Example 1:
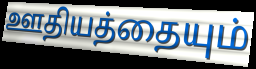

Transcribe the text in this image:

ஊதியத்தையும்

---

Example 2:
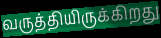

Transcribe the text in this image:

வருத்தியிருக்கிறது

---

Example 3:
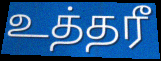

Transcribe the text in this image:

உத்தரீ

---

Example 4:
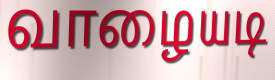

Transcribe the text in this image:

வாழையடி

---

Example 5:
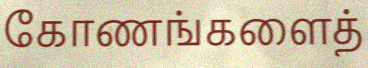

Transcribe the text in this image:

கோணங்களைத்